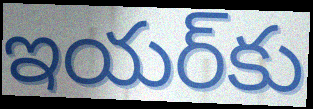
ఇయర్‌కు